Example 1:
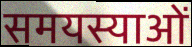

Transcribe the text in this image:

समयस्याओं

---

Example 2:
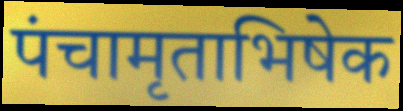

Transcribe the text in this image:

पंचामृताभिषेक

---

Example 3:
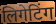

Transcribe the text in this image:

लिगेटिंग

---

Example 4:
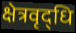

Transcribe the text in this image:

क्षेत्रवृद्धि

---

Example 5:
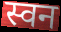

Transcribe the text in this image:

स्वन